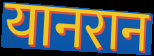
यानरान